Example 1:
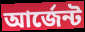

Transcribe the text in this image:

আর্জেন্ট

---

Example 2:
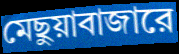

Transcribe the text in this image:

মেছুয়াবাজারে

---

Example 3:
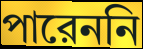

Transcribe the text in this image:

পারেননি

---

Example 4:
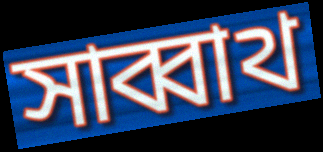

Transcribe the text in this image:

সাব্বাথ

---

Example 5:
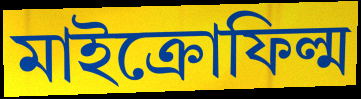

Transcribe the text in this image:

মাইক্রোফিল্ম